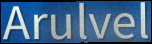
Arulvel